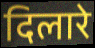
दिलारे